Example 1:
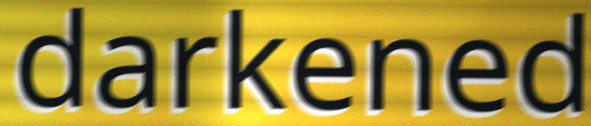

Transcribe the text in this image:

darkened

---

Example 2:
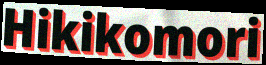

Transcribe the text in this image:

Hikikomori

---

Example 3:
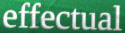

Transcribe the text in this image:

effectual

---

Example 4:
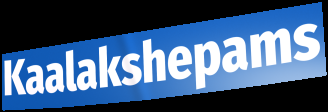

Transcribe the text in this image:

Kaalakshepams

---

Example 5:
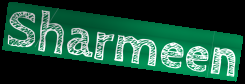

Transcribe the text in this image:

Sharmeen